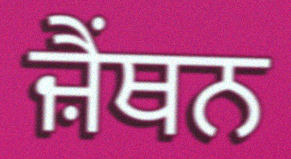
ਜ਼ੈਂਥਨ